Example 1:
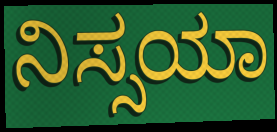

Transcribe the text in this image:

ನಿಸ್ಸಯಾ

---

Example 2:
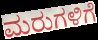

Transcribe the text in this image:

ಮರುಗಳಿಗೆ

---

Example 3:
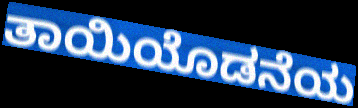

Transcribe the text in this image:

ತಾಯಿಯೊಡನೆಯ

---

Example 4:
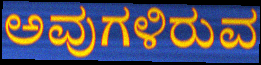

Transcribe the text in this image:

ಅವುಗಳಿರುವ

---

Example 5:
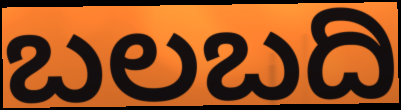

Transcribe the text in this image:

ಬಲಬದಿ